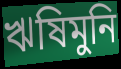
ঋষিমুনি